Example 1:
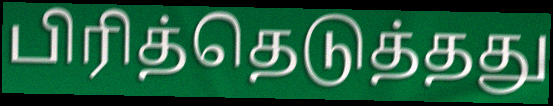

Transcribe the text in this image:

பிரித்தெடுத்தது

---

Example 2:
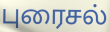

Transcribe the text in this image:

புரைசல்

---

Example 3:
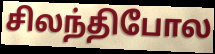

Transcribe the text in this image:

சிலந்திபோல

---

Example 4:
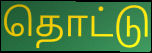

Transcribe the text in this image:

தொட்டு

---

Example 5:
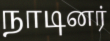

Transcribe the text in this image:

நாடினர்